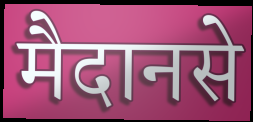
मैदानसे